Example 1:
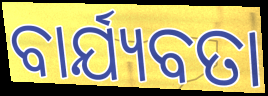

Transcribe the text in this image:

ବାର୍ଯ୍ୟବତା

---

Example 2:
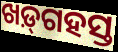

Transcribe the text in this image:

ଖଡ଼୍‌ଗହସ୍ତ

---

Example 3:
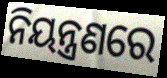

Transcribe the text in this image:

ନିୟନ୍ତ୍ରଣରେ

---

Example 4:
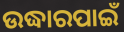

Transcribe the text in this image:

ଉଦ୍ଧାରପାଇଁ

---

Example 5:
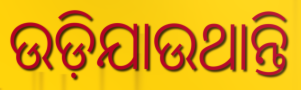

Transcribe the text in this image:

ଉଡ଼ିଯାଉଥାନ୍ତି